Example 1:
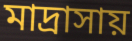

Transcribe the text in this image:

মাদ্রাসায়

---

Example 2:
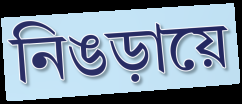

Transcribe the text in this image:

নিঙড়ায়ে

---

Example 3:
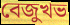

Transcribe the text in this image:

বেজুখভ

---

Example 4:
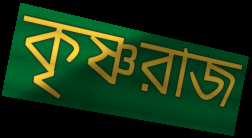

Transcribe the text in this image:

কৃষ্ণরাজ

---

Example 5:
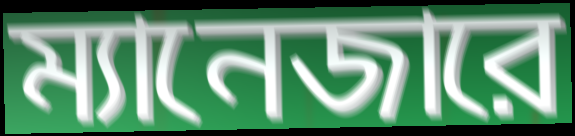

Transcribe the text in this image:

ম্যানেজারে